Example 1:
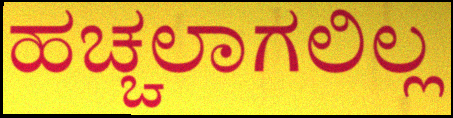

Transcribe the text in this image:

ಹಚ್ಚಲಾಗಲಿಲ್ಲ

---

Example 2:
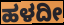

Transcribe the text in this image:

ಹಳದೀ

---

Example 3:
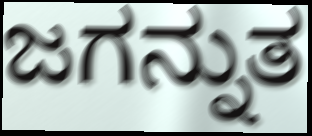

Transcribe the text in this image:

ಜಗನ್ನುತ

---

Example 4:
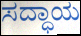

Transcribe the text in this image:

ಸದ್ಧಾಯ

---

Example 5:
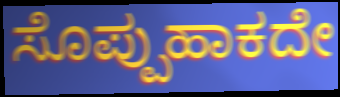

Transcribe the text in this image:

ಸೊಪ್ಪುಹಾಕದೇ